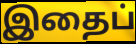
இதைப்